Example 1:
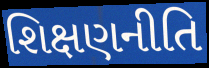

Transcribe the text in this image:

શિક્ષણનીતિ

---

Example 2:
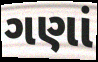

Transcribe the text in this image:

ગણાં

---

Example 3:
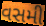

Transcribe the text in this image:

વસમી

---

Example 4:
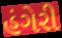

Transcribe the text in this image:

હંગેરી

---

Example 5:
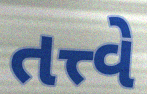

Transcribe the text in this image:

તત્ત્વે